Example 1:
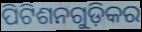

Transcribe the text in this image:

ପିଟିଶନଗୁଡ଼ିକର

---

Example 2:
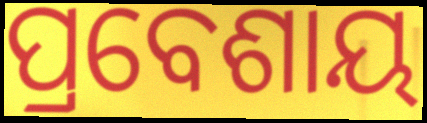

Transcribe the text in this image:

ପ୍ରବେଶାୟ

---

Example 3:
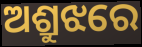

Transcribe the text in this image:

ଅଶ୍ରୁଝରେ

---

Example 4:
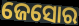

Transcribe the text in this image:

ଜେସୋର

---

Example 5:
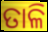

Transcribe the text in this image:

ତାଳି